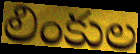
లింకుల